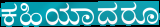
ಕಹಿಯಾದರೂ